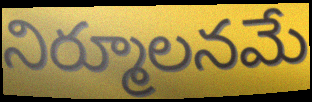
నిర్మూలనమే